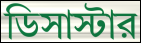
ডিসাস্টার